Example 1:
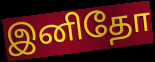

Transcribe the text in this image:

இனிதோ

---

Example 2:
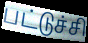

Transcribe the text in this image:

பட்டுச்சி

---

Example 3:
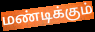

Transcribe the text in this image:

மண்டிக்கும்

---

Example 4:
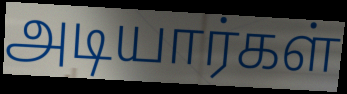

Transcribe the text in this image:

அடியார்கள்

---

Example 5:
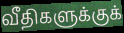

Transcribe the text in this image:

வீதிகளுக்குக்